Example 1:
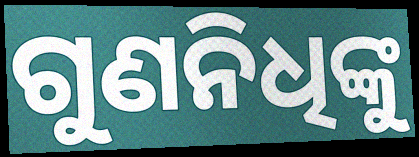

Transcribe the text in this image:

ଗୁଣନିଧିଙ୍କୁ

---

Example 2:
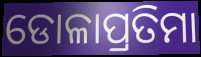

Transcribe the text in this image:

ଡୋଳାପ୍ରତିମା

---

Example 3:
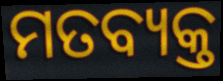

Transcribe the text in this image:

ମତବ୍ୟକ୍ତ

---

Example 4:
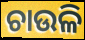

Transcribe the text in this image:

ଚାଉଳି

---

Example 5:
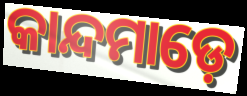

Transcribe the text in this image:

କାନ୍ଦମାଡ଼େ